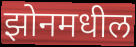
झोनमधील